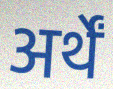
अर्थें